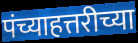
पंच्याहत्तरीच्या